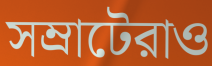
সম্রাটেরাও